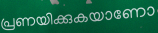
പ്രണയിക്കുകയാണോ